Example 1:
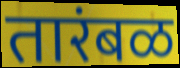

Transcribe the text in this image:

तारंबळ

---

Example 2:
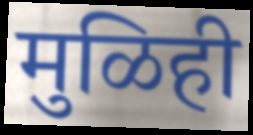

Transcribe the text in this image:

मुळिही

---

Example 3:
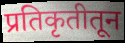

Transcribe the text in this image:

प्रतिकृतीतून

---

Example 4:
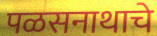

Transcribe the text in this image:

पळसनाथाचे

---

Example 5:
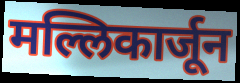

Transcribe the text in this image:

मल्लिकार्जून